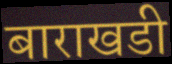
बाराखडी